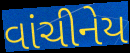
વાંચીનેય